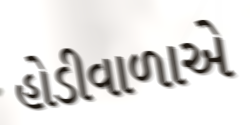
હોડીવાળાએ